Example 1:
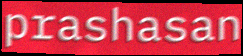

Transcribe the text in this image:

prashasan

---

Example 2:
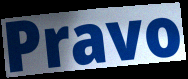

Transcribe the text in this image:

Pravo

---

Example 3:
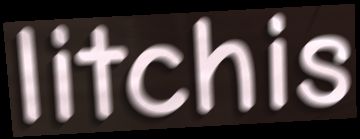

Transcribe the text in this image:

litchis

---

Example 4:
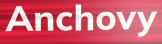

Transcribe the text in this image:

Anchovy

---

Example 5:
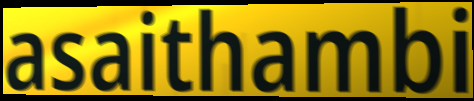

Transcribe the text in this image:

asaithambi